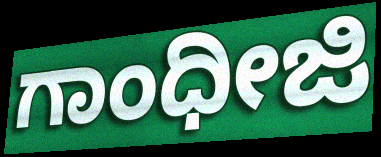
ಗಾಂಧೀಜಿ